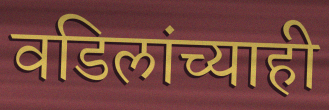
वडिलांच्याही